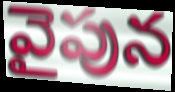
వైపున